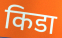
किडा